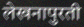
लेखनापुरती